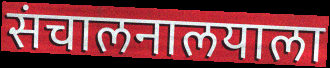
संचालनालयाला